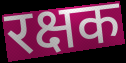
रक्षक